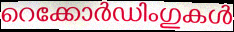
റെക്കോർഡിംഗുകൾ